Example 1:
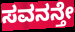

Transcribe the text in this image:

ಸವನನ್ತೇ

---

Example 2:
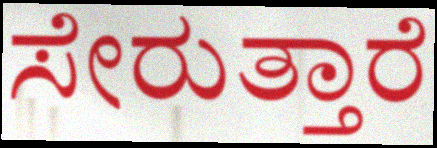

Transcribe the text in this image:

ಸೇರುತ್ತಾರೆ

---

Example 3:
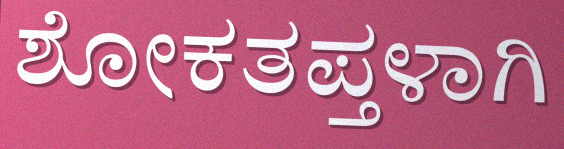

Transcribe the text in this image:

ಶೋಕತಪ್ತಳಾಗಿ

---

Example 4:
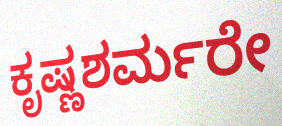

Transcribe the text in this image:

ಕೃಷ್ಣಶರ್ಮರೇ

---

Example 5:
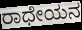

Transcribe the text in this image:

ರಾಧೇಯನ